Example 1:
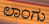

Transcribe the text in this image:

ಲಾಂಗು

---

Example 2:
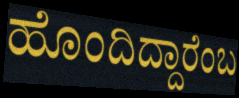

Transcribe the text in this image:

ಹೊಂದಿದ್ದಾರೆಂಬ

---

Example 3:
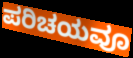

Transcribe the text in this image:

ಪರಿಚಯವೂ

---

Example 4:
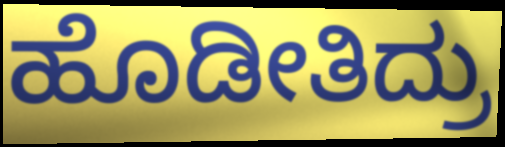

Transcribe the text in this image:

ಹೊಡೀತಿದ್ರು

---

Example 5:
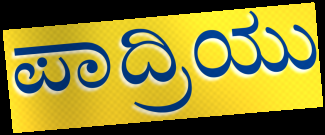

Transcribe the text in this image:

ಪಾದ್ರಿಯು